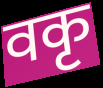
वकृ